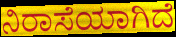
ನಿರಾಸೆಯಾಗಿದೆ